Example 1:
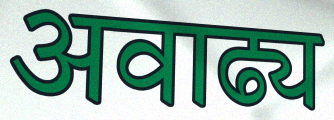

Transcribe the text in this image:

अवाढ्य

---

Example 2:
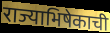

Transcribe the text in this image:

राज्याभिषेकाची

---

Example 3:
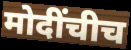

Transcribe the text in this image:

मोदींचीच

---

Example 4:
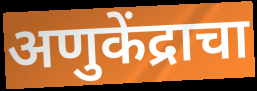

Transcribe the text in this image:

अणुकेंद्राचा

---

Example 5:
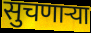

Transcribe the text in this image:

सुचणाऱ्या